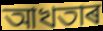
আখতাৰ